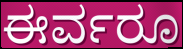
ಈರ್ವರೂ